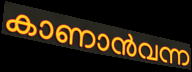
കാണാൻവന്ന